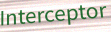
Interceptor